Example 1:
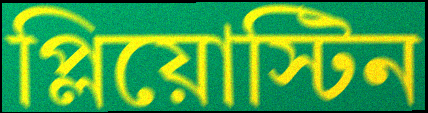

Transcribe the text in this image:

প্লিয়োস্টিন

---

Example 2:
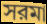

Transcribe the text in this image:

সরমা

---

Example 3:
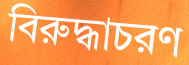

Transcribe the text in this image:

বিরুদ্ধাচরণ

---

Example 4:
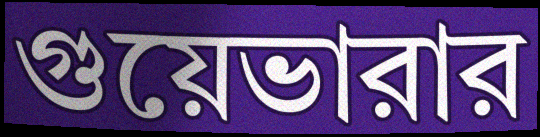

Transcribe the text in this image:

গুয়েভারার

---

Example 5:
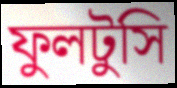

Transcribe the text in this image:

ফুলটুসি